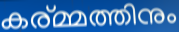
കര്മ്മത്തിനും